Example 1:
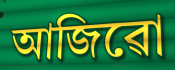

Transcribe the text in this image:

আজিৱো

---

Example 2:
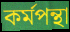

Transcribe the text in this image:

কৰ্মপন্থা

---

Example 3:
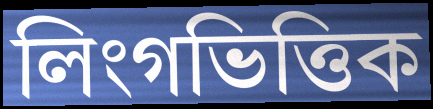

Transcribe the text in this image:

লিংগভিত্তিক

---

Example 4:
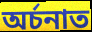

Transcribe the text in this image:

অৰ্চনাত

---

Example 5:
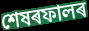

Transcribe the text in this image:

শেষৰফালৰ